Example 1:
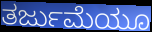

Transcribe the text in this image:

ತರ್ಜುಮೆಯೂ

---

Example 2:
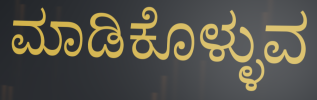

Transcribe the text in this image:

ಮಾಡಿಕೊಳ್ಳುವ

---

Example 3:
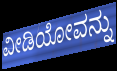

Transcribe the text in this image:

ವೀಡಿಯೋವನ್ನು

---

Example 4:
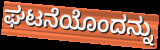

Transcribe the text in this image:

ಘಟನೆಯೊಂದನ್ನು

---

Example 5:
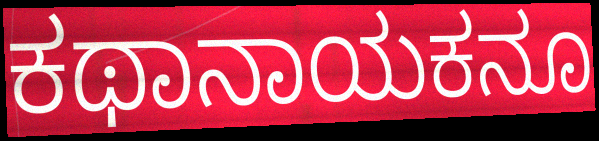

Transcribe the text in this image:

ಕಥಾನಾಯಕನೂ